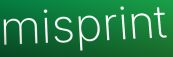
misprint